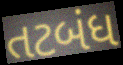
તટબંધ